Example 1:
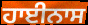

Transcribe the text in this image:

ਹਾਈਨਾਸ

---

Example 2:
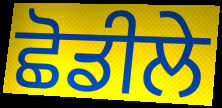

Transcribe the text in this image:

ਛੋਡੀਲੇ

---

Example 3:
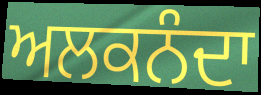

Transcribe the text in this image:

ਅਲਕਨੰਦਾ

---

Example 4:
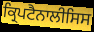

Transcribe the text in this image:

ਕ੍ਰਿਪਟੈਨਾਲੀਸਿਸ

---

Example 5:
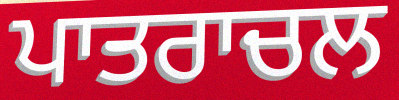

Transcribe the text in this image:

ਪਾਤਰਾਚਲ